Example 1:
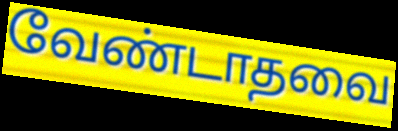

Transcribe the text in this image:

வேண்டாதவை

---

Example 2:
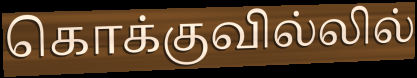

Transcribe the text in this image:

கொக்குவில்லில்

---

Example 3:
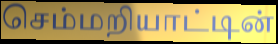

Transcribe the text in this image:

செம்மறியாட்டின்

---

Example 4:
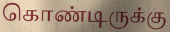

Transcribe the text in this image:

கொண்டிருக்கு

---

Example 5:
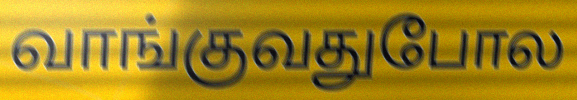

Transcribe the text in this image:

வாங்குவதுபோல